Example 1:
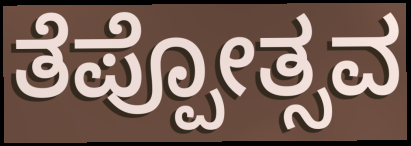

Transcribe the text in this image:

ತೆಪ್ಪೋತ್ಸವ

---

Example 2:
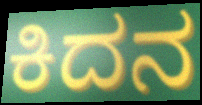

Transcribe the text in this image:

ಕಿದನ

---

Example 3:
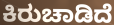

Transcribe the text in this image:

ಕಿರುಚಾಡಿದೆ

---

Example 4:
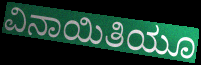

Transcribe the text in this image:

ವಿನಾಯಿತಿಯೂ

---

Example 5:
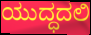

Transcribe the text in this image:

ಯುದ್ಧದಲಿ